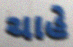
ચાહે